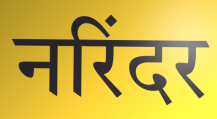
नरिंदर